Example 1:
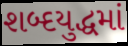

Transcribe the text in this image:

શબ્દયુદ્ધમાં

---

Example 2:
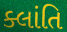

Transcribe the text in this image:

ક્લાંતિ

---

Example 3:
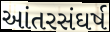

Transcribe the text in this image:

આંતરસંઘર્ષ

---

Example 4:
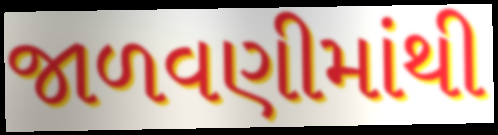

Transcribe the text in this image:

જાળવણીમાંથી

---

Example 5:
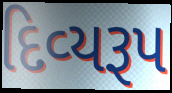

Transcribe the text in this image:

દિવ્‍યરૂપ